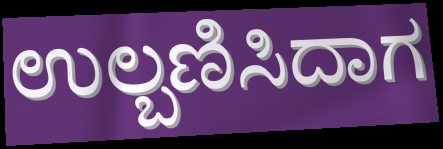
ಉಲ್ಬಣಿಸಿದಾಗ